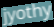
jyothy